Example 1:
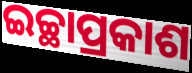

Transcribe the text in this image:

ଇଚ୍ଛାପ୍ରକାଶ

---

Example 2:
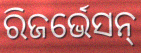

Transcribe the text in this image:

ରିଜର୍ଭେସନ୍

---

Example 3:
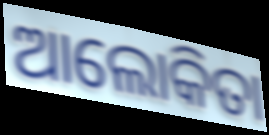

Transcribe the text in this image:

ଆଲୋକିତା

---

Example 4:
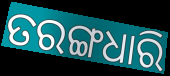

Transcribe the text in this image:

ତରଙ୍ଗଧାରି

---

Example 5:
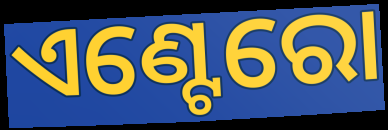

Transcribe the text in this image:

ଏଣ୍ଟେରୋ